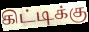
கிட்டிக்கு